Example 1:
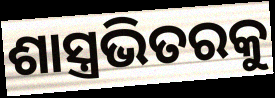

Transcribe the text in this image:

ଶାସ୍ତ୍ରଭିତରକୁ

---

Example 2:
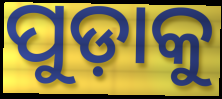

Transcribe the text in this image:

ପୁଡ଼ାକୁ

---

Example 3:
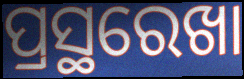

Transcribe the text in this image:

ପ୍ରସ୍ଥରେଖା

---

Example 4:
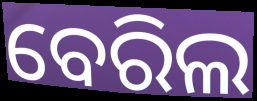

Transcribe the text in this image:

ବେରିଲ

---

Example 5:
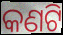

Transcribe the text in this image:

କଣଟି